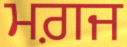
ਮਗ਼ਜ